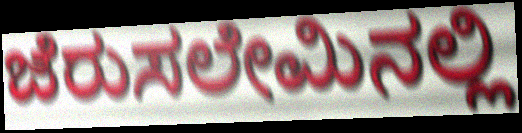
ಜೆರುಸಲೇಮಿನಲ್ಲಿ